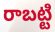
రాబట్టి